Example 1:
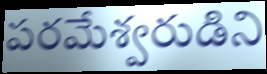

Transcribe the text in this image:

పరమేశ్వరుడిని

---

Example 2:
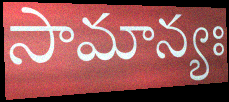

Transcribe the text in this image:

సామాన్యః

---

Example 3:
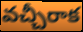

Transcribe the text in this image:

వచ్చీరాక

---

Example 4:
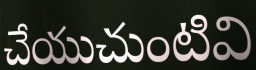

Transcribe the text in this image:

చేయుచుంటివి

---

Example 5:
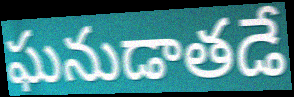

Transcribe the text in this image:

ఘనుడాతడే